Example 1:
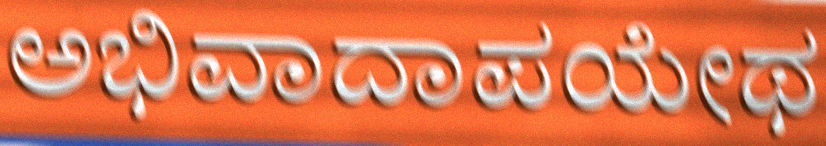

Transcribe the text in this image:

ಅಭಿವಾದಾಪಯೇಥ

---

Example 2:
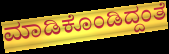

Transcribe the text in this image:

ಮಾಡಿಕೊಂಡಿದ್ದಂತೆ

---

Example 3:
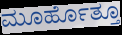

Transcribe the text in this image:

ಮೂರ್ಹೊತ್ತೂ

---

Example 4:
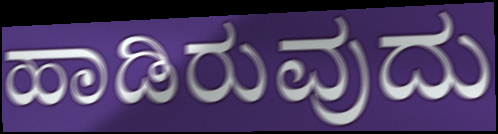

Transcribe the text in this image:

ಹಾಡಿರುವುದು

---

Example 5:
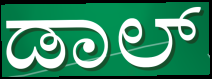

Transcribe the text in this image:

ಡಾಲ್